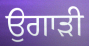
ਉਗਾੜੀ